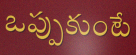
ఒప్పుకుంటే